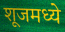
शूजमध्ये